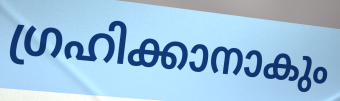
ഗ്രഹിക്കാനാകും